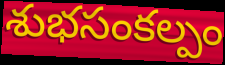
శుభసంకల్పం